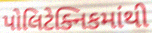
પોલિટેક્નિકમાંથી